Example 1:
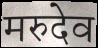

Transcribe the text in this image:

मरुदेव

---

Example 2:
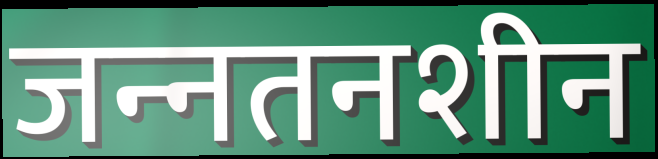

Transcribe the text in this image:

जन्नतनशीन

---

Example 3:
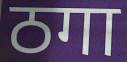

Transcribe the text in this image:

ठगा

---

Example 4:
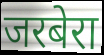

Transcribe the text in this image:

जरबेरा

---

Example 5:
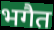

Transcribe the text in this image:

भगैत